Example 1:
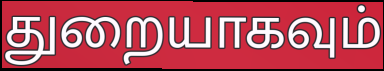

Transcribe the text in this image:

துறையாகவும்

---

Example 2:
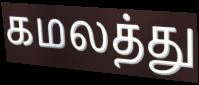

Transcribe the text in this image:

கமலத்து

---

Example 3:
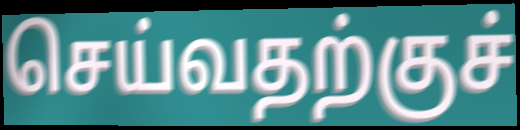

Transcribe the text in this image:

செய்வதற்குச்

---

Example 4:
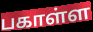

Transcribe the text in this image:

பகாள்ள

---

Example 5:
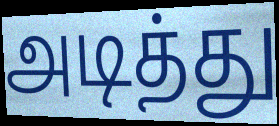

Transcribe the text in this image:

அடித்து